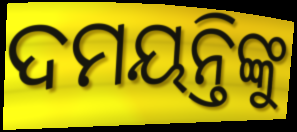
ଦମୟନ୍ତିଙ୍କୁ